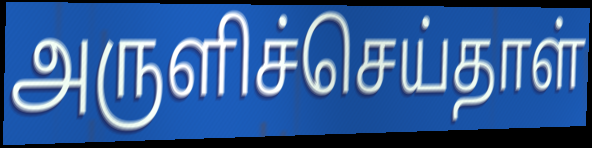
அருளிச்செய்தாள்